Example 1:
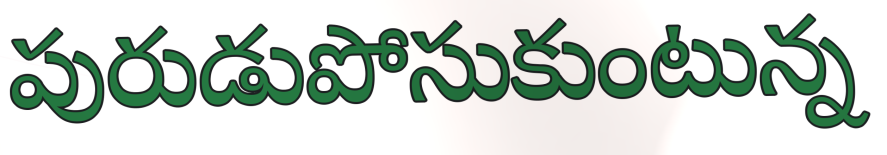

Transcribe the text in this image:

పురుడుపోసుకుంటున్న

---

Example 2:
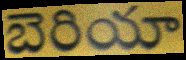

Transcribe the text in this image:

బెరియా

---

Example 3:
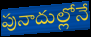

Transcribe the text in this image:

పునాదుల్లోనే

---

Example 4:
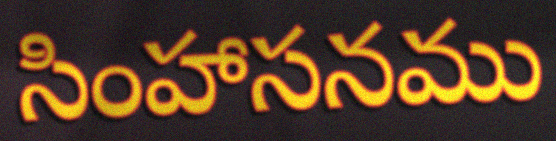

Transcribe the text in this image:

సింహాసనము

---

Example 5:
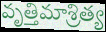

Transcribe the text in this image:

వృత్తిమాశ్రిత్య